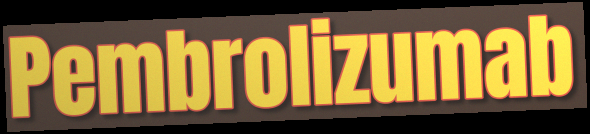
Pembrolizumab